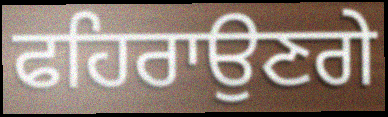
ਫਹਿਰਾਉਣਗੇ